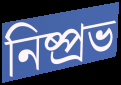
নিষ্প্রভ